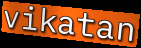
vikatan